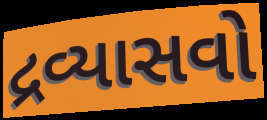
દ્રવ્યાસવો